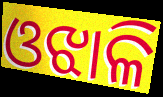
ଓଝାଳି